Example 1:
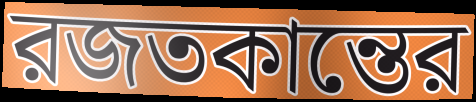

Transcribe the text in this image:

রজতকান্তের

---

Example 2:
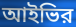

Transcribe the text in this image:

আইভির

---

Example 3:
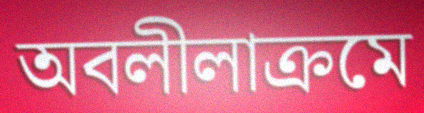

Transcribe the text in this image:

অবলীলাক্রমে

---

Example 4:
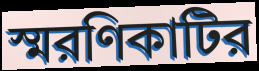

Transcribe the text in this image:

স্মরণিকাটির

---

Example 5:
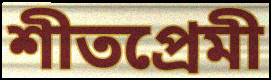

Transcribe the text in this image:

শীতপ্রেমী